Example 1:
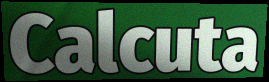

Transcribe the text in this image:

Calcuta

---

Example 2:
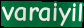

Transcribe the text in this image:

varaiyil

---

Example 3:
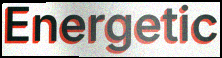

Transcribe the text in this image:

Energetic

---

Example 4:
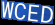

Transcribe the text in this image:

WCED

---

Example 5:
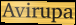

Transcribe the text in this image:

Avirupa